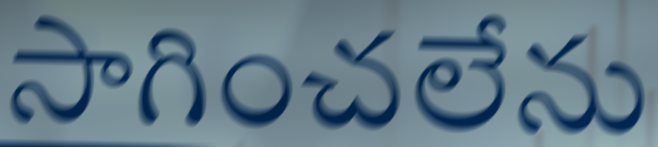
సాగించలేను